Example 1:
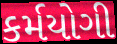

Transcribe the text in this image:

કર્મયોગી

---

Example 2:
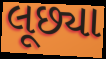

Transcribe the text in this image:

લૂછ્યા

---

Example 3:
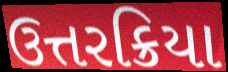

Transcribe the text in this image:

ઉત્તરક્રિયા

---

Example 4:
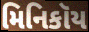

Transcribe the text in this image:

મિનિકૉય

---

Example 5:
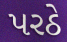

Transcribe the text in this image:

પરઠે